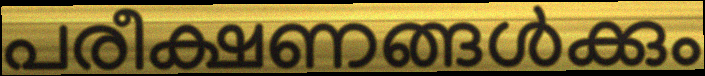
പരീക്ഷണങ്ങൾക്കും